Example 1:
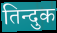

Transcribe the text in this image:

तिन्दुक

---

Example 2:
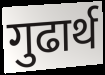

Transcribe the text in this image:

गुढार्थ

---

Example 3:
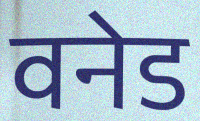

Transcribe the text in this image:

वनेड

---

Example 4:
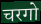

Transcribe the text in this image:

चरगो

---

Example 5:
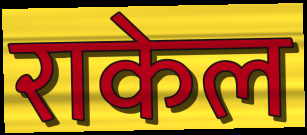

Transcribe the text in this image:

राकेल